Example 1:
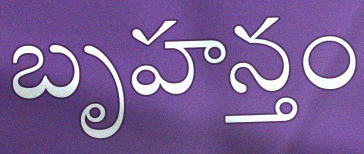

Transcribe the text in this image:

బృహన్తం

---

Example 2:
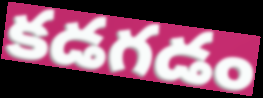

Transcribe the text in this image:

కడగడం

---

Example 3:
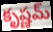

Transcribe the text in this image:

కృష్ణమ్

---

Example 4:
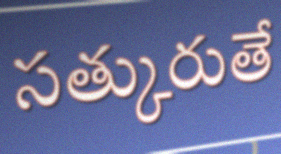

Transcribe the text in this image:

సత్కురుతే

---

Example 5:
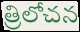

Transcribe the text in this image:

త్రిలోచన